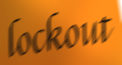
lockout